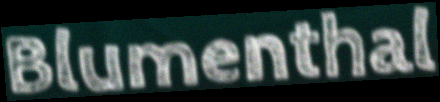
Blumenthal